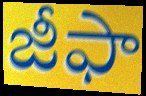
జీఫా